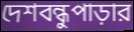
দেশবন্ধুপাড়ার